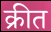
क्रीत